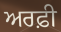
ਅਰਫ਼ੀ